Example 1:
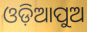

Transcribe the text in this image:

ଓଡ଼ିଆପୁଅ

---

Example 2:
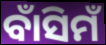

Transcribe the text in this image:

ବାଁସିମଁ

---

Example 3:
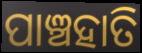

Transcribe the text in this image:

ପାଞ୍ଚହାତି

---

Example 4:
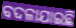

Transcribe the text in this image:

ବଦଳାଯାଇଛି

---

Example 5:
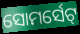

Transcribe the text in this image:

ସୋମର୍ସେଟ୍